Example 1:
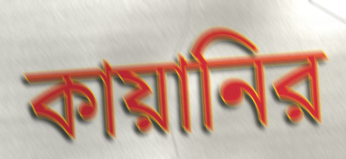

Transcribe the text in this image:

কায়ানির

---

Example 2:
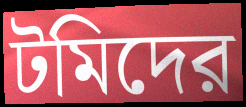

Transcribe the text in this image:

টমিদের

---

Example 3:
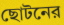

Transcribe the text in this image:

ছোটনের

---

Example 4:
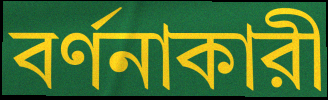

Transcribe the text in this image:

বর্ণনাকারী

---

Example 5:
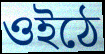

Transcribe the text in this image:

ওইঠে